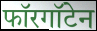
फॉरगॉटेन